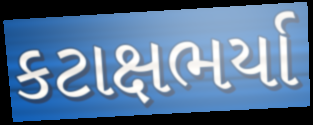
કટાક્ષભર્યા